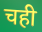
चही